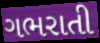
ગભરાતી